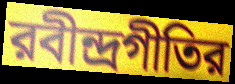
রবীন্দ্রগীতির